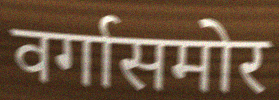
वर्गासमोर